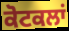
ਕੋਟਕਲਾਂ